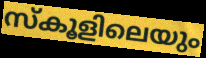
സ്കൂളിലെയും